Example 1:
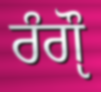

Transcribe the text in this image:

ਰੰਗੵੌ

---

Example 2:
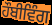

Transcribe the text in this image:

ਹੌਬੀਵਿੰਗ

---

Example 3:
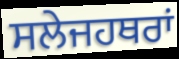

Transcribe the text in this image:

ਸਲੇਜਹਥਰਾਂ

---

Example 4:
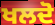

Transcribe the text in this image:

ਖਲਦੋ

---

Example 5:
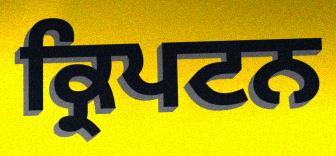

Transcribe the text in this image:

ਕ੍ਰਿਪਟਨ